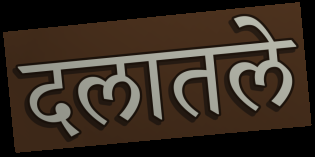
दलातले